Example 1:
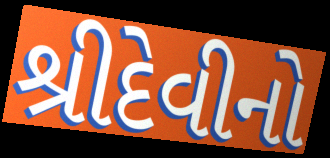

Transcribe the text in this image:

શ્રીદેવીનો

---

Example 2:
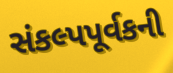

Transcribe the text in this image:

સંકલ્પપૂર્વકની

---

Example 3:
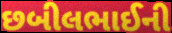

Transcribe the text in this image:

છબીલભાઈની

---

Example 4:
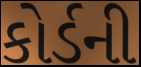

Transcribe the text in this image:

કોર્ડની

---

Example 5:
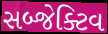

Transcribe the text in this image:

સબ્જેક્ટિવ